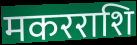
मकरराशि